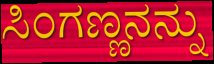
ಸಿಂಗಣ್ಣನನ್ನು